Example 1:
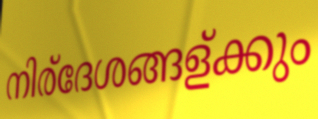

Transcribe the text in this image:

നിര്ദേശങ്ങള്ക്കും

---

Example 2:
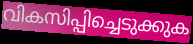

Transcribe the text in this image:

വികസിപ്പിച്ചെടുക്കുക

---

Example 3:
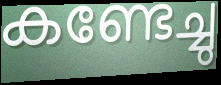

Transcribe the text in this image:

കണ്ടേച്ചു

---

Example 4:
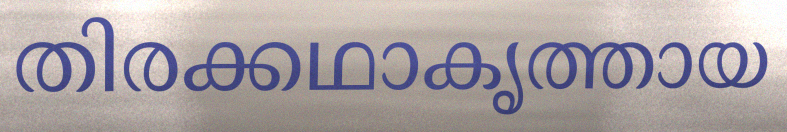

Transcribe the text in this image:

തിരക്കഥാകൃത്തായ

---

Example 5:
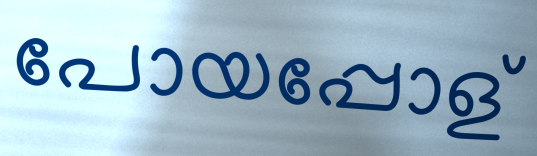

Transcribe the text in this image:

പോയപ്പോള്